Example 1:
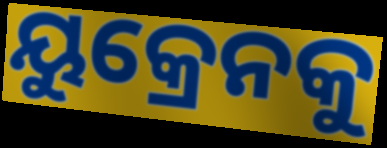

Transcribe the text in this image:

ୟୁକ୍ରେନକୁ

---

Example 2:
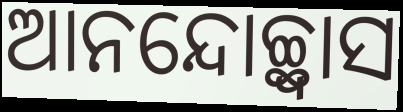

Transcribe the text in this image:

ଆନନ୍ଦୋଚ୍ଛ୍ୱାସ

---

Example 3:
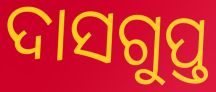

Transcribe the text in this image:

ଦାସଗୁପ୍ତ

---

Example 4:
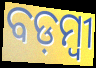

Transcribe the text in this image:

ବଡ଼ମ୍ବୀ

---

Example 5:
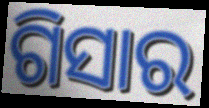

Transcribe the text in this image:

ଗିସାର